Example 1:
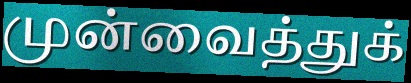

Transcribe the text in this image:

முன்வைத்துக்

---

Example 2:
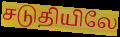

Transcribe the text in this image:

சடுதியிலே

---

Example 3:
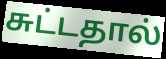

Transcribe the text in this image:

சுட்டதால்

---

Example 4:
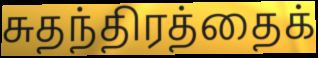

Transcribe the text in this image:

சுதந்திரத்தைக்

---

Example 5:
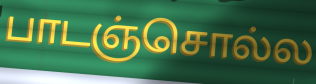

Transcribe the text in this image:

பாடஞ்சொல்ல